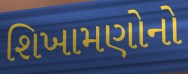
શિખામણોનો